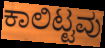
ಕಾಲಿಟ್ಟವು